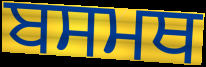
ਬਸਮਥ